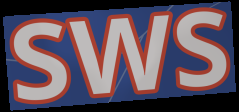
sws